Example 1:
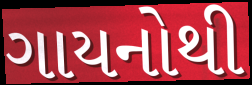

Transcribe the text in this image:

ગાયનોથી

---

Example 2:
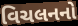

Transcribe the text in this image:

વિચલનનો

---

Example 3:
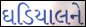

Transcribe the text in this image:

ઘડિયાલને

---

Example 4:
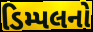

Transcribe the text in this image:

ડિમ્પલનો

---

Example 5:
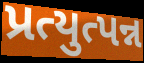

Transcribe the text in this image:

પ્રત્યુત્પન્ન